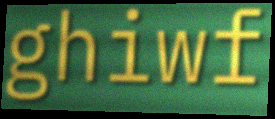
ghiwf